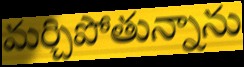
మర్చిపోతున్నాను